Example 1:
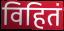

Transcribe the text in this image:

विहितं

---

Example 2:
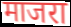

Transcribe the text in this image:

माजरा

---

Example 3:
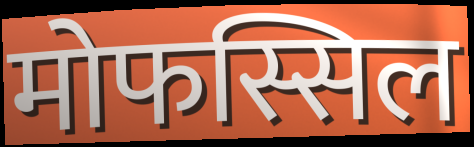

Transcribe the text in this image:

मोफस्सिल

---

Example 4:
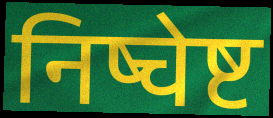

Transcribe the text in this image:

निष्चेष्ट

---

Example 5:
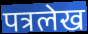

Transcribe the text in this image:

पत्रलेख